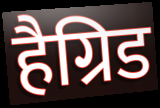
हैग्रिड